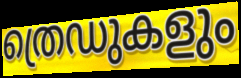
ത്രെഡുകളും